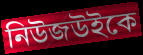
নিউজউইকে